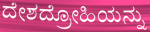
ದೇಶದ್ರೋಹಿಯನ್ನು